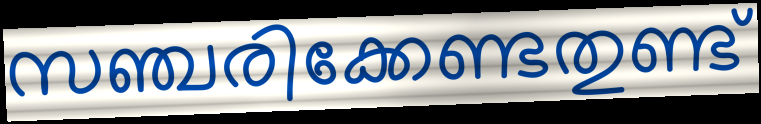
സഞ്ചരിക്കേണ്ടതുണ്ട്